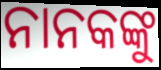
ନାନକଙ୍କୁ